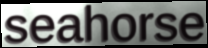
seahorse